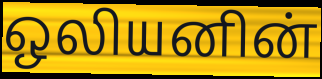
ஒலியனின்